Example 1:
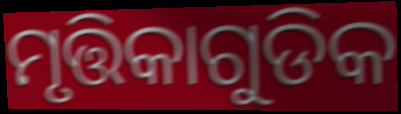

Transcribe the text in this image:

ମୃତ୍ତିକାଗୁଡିକ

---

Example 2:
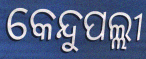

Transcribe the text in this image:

କେନ୍ଦୁପଲ୍ଲୀ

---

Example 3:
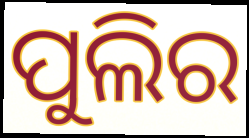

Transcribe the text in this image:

ପୁଲିର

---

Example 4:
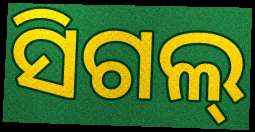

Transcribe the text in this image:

ସିଗଲ୍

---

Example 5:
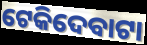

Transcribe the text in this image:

ଟେକିଦେବାଟା